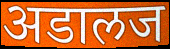
अडालज